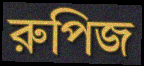
রুপিজ